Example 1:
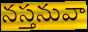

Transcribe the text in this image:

నస్తనువా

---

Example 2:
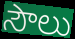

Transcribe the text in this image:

సౌలు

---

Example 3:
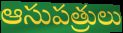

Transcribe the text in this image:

ఆసుపత్రులు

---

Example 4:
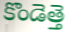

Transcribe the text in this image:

కొండెత్తె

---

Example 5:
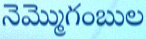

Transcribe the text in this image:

నెమ్మొగంబుల